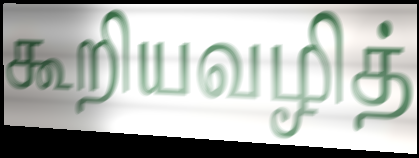
கூறியவழித்